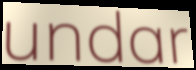
undar